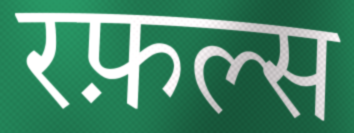
रफ़ल्स